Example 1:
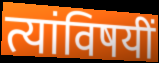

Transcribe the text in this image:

त्यांविषयीं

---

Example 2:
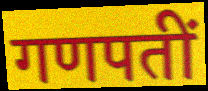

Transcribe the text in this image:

गणपतीं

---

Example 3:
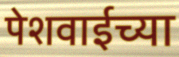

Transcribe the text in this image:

पेशवाईच्या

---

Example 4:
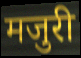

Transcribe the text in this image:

मजुरी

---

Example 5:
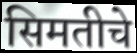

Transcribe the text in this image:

सिमतीचे